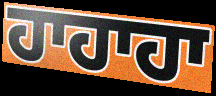
ਹਾਹਾਹਾ